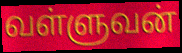
வள்ளுவன்